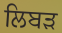
ਲਿਬੜ